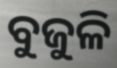
ବୁଜୁଳି